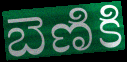
బెణికి